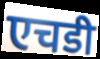
एचडी